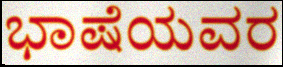
ಭಾಷೆಯವರ